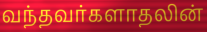
வந்தவர்களாதலின்